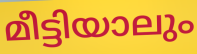
മീട്ടിയാലും